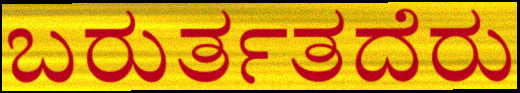
ಬರುರ್ತತದೆರು